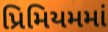
પ્રિમિયમમાં